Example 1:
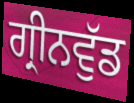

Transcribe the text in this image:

ਗ੍ਰੀਨਵੁੱਡ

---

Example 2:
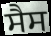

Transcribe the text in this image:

ਸੈਸ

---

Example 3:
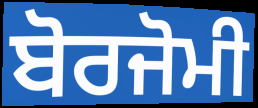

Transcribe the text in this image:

ਬੋਰਜੋਮੀ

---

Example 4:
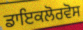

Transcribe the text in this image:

ਡਾਇਕਲੋਰਵੋਸ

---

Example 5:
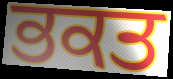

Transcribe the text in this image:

ਭਕਤ